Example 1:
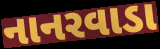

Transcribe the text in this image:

નાનરવાડા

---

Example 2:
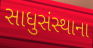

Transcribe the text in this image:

સાધુસંસ્થાના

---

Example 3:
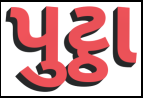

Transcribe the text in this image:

પુટ્ઠા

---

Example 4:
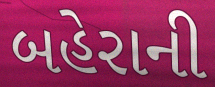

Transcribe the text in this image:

બહેરાની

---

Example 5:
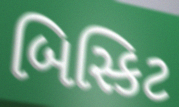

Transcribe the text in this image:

બિસ્કિટ